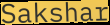
Sakshar